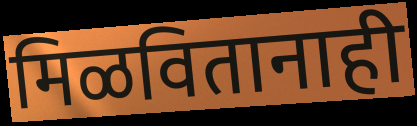
मिळवितानाही